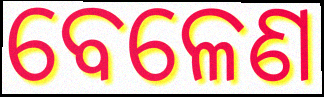
ବେଳେଣ